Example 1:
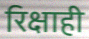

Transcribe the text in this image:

रिक्षाही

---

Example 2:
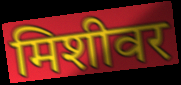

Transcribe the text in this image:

मिशीवर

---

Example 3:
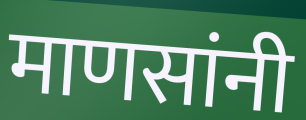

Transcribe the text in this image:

माणसांनी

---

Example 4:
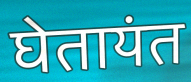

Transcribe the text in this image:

घेतायंत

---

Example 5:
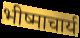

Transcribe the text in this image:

भीष्माचार्य